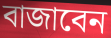
বাজাবেন